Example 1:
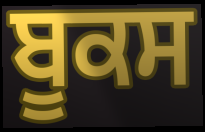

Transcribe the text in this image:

ਬੂਕਸ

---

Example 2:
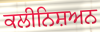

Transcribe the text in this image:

ਕਲੀਨਿਸ਼ਅਨ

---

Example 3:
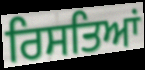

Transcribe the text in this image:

ਰਿਸਤਿਆਂ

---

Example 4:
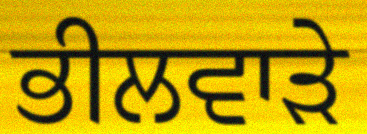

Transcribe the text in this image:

ਭੀਲਵਾੜੇ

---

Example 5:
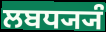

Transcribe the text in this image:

ਲਬਧ੍ਯ੍ਯੰ